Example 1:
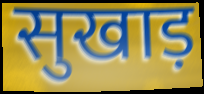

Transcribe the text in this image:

सुखाड़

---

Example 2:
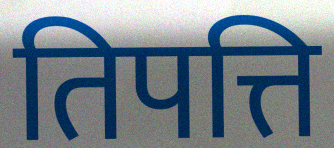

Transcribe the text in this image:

तिपत्ति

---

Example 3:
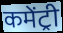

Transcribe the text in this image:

कमेंट्री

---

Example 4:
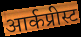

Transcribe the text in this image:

आर्कप्रीस्ट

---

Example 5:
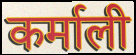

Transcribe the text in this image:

कर्माली